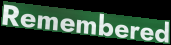
Remembered